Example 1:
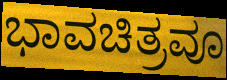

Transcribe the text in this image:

ಭಾವಚಿತ್ರವೂ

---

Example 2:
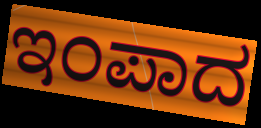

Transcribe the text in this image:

ಇಂಪಾದ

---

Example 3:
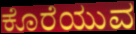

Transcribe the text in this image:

ಕೊರೆಯುವ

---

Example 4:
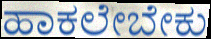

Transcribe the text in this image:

ಹಾಕಲೇಬೇಕು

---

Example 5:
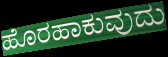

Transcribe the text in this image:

ಹೊರಹಾಕುವುದು